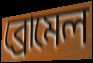
ব্রোমেল